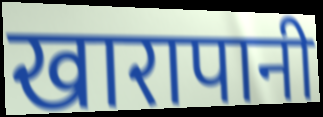
खारापानी